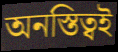
অনস্তিত্বই